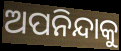
ଅପନିନ୍ଦାକୁ